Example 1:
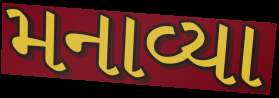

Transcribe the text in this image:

મનાવ્યા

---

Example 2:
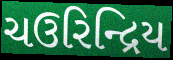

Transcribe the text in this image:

ચઉરિન્દ્રિય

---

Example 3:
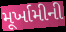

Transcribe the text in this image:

મૂર્ખામીની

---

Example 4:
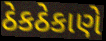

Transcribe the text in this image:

ઠેકઠેકાણે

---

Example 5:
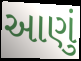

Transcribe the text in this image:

આણું